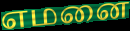
எமனை